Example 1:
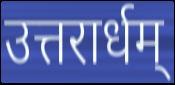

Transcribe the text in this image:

उत्तरार्धम्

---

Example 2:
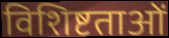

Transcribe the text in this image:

विशिष्टताओं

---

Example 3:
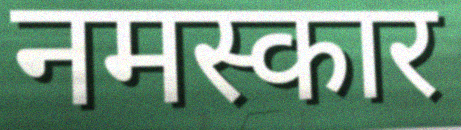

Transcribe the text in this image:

नमस्कार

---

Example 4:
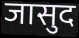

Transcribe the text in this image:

जासुद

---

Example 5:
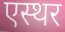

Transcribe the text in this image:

एस्थर